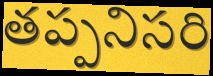
తప్పనిసరి